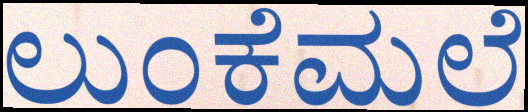
ಲುಂಕೆಮಲೆ